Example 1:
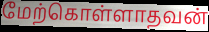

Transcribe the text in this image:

மேற்கொள்ளாதவன்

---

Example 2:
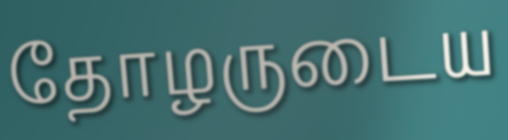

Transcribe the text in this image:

தோழருடைய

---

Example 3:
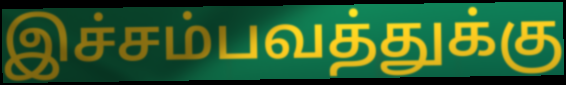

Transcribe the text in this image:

இச்சம்பவத்துக்கு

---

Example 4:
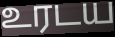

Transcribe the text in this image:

உரடய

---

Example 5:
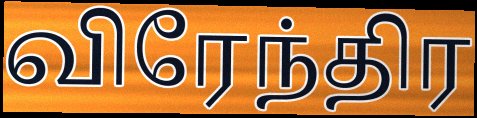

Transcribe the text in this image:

விரேந்திர